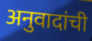
अनुवादांची